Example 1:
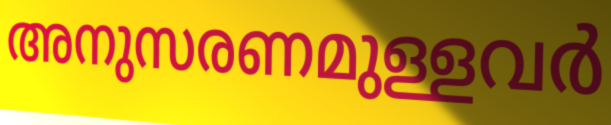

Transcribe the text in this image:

അനുസരണമുള്ളവർ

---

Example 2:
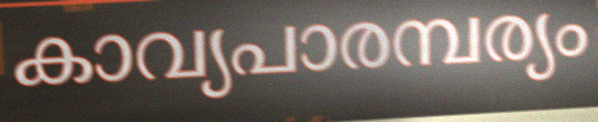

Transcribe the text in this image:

കാവ്യപാരമ്പര്യം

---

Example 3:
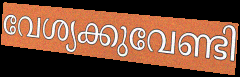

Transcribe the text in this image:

വേശ്യക്കുവേണ്ടി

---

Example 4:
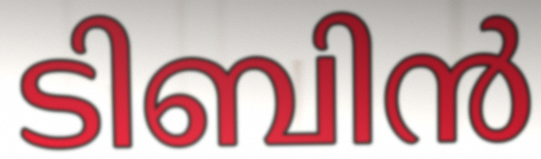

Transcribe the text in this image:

ടിബിൻ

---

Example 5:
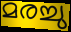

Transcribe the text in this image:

മരച്ചു